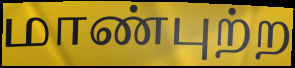
மாண்புற்ற